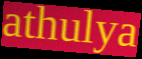
athulya